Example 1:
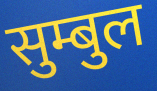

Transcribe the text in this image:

सुम्बुल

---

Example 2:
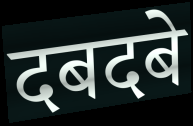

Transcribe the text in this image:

दबदबे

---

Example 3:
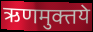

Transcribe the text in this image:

ऋणमुक्तये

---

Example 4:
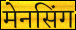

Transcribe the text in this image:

मेनसिंग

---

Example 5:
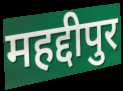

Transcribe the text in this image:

महद्दीपुर